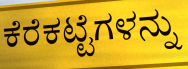
ಕೆರೆಕಟ್ಟೆಗಳನ್ನು